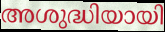
അശുദ്ധിയായി